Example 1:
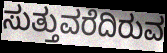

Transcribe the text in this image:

ಸುತ್ತುವರೆದಿರುವ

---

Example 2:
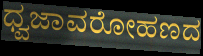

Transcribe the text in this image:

ಧ್ವಜಾವರೋಹಣದ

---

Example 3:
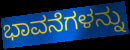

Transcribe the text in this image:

ಭಾವನೆಗಳನ್ನು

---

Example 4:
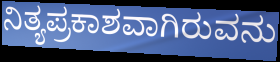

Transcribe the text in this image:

ನಿತ್ಯಪ್ರಕಾಶವಾಗಿರುವನು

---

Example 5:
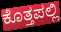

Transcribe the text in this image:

ಕೊತ್ತಪಲ್ಲಿ